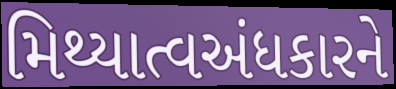
મિથ્યાત્વઅંધકારને